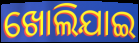
ଖୋଲିଯାଇ